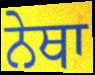
ਨੇਥਾ